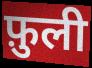
फ़ुली